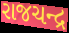
રાજચન્દ્ર